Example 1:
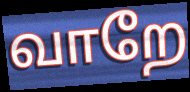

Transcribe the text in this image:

வாறே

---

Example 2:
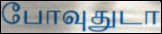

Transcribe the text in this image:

போவுதுடா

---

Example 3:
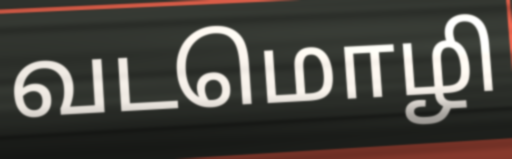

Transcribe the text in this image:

வடமொழி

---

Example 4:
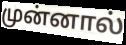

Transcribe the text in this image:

முன்னால்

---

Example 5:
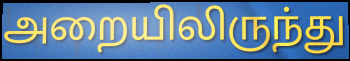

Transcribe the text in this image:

அறையிலிருந்து